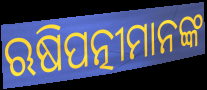
ଋଷିପତ୍ନୀମାନଙ୍କ